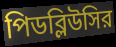
পিডব্লিউসির